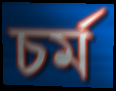
চৰ্ম